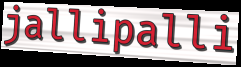
jallipalli